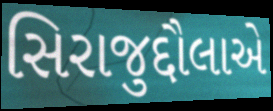
સિરાજુદ્દૌલાએ